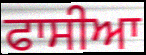
ਫਾਸੀਆ